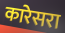
कारेसरा